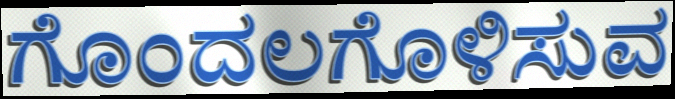
ಗೊಂದಲಗೊಳಿಸುವ